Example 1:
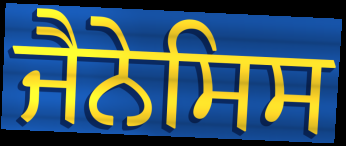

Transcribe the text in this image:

ਜੈਨੇਸਿਸ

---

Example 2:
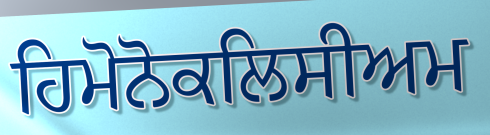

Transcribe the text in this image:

ਹਿਮੋਨੋਕਲਿਸੀਅਮ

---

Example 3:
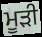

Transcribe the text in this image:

ਮੂੜੀ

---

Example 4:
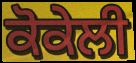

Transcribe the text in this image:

ਕੋਕੇਲੀ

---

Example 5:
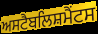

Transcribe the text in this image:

ਅਸਟੈਬਲਿਸ਼ਮੈਂਟਸ